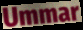
Ummar